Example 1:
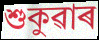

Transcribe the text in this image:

শুকুৱাৰ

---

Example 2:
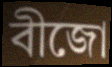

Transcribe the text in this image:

বীজো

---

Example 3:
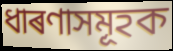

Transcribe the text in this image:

ধাৰণাসমূহক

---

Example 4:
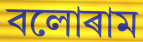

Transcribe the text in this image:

বলোৰাম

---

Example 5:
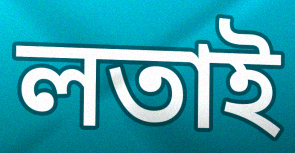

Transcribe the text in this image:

লতাই